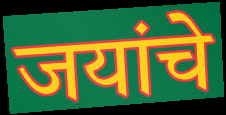
जयांचे